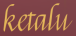
ketalu